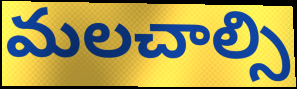
మలచాల్సి